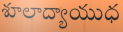
శూలాద్యాయుధ